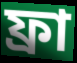
ফ্রা